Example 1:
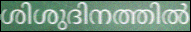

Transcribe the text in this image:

ശിശുദിനത്തിൽ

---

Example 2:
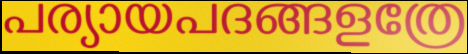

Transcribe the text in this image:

പര്യായപദങ്ങളത്രേ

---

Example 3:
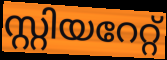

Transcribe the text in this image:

സ്റ്റിയറേറ്റ്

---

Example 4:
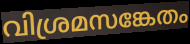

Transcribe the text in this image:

വിശ്രമസങ്കേതം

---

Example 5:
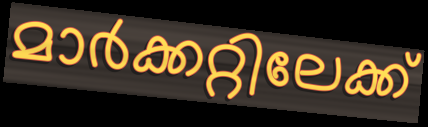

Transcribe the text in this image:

മാർക്കറ്റിലേക്ക്